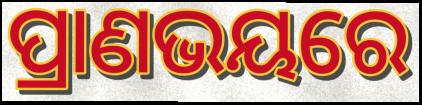
ପ୍ରାଣଭୟରେ